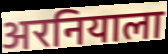
अरनियाला